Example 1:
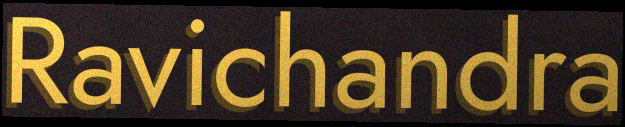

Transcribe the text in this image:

Ravichandra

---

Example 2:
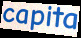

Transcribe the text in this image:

capita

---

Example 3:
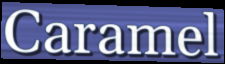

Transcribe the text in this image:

Caramel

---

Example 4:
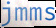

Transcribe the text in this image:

jmms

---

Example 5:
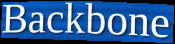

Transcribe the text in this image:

Backbone